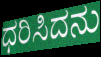
ಧರಿಸಿದನು